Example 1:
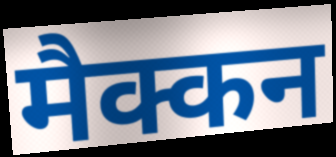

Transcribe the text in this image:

मैक्कन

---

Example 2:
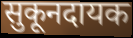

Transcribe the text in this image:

सुकूनदायक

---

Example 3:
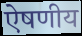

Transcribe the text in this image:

ऐषणीय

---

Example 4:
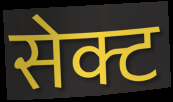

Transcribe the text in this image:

सेक्ट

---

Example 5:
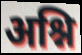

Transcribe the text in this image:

अश्नि